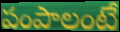
పంపాలంటే